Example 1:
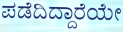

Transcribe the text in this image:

ಪಡೆದಿದ್ದಾರೆಯೇ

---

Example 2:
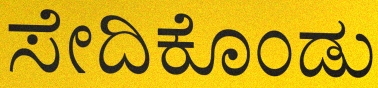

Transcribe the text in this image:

ಸೇದಿಕೊಂಡು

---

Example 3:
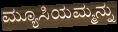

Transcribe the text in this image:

ಮ್ಯೂಸಿಯಮ್ಮನ್ನು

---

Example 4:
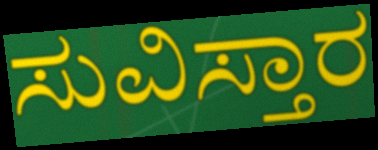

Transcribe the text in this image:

ಸುವಿಸ್ತಾರ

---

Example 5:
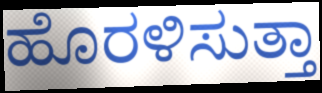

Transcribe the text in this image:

ಹೊರಳಿಸುತ್ತಾ